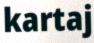
kartaj